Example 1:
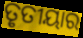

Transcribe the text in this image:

ତୃତୀୟାର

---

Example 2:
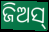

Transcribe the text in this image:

ଜିଅସ୍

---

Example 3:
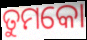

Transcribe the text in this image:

ତୁମକୋ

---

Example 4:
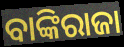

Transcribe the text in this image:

ବାଙ୍କିରାଜା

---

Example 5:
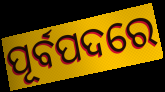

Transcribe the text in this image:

ପୂର୍ବପଦରେ